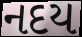
નદય